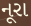
નૂરા